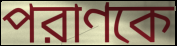
পরাণকে